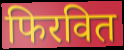
फिरवित